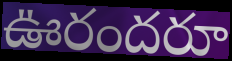
ఊరందరూ